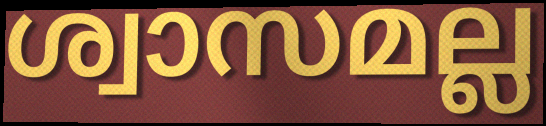
ശ്വാസമല്ല